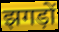
झगड़ों